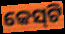
କେସ୍‌ଟି